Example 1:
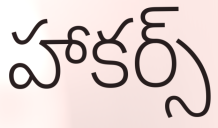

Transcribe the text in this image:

హాకర్స్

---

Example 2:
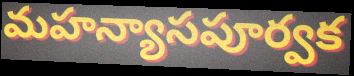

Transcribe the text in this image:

మహన్యాసపూర్వక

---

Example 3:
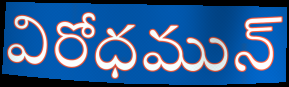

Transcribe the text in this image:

విరోధమున్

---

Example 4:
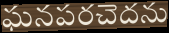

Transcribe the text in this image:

ఘనపరచెదను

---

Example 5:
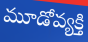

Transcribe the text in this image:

మూడోవ్యక్తి